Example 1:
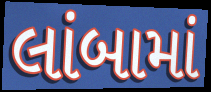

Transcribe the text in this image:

લાંબામાં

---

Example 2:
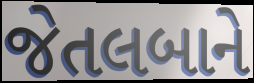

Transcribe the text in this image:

જેતલબાને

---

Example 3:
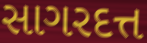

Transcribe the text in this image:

સાગરદત્ત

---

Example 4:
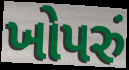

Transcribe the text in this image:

ખોપરું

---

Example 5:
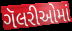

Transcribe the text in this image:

ગૅલરીઓમાં